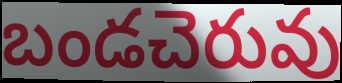
బండచెరువు